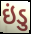
ઇંડુ